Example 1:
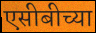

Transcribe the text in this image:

एसीबीच्या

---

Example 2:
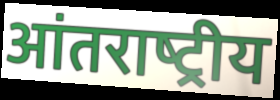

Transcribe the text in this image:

आंतराष्ट्रीय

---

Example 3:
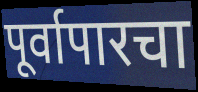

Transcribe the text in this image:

पूर्वापारचा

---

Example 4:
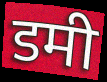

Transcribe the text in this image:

डमी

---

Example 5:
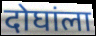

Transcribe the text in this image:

दोघांला